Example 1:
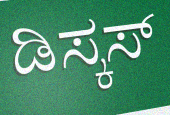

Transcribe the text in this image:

ಡಿಸ್ಕಸ್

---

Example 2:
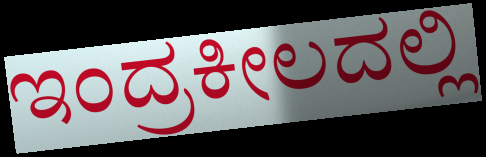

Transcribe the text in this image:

ಇಂದ್ರಕೀಲದಲ್ಲಿ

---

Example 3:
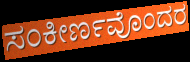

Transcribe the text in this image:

ಸಂಕೀರ್ಣವೊಂದರ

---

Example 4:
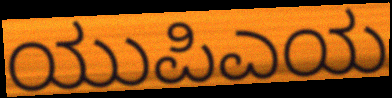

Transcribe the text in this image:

ಯುಪಿಎಯ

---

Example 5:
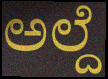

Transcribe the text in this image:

ಅಲ್ದೆ